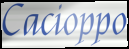
Cacioppo